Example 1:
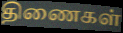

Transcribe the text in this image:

திணைகள்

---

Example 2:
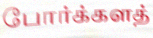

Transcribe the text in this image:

போர்க்களத்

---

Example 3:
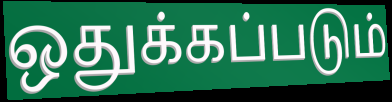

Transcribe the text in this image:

ஒதுக்கப்படும்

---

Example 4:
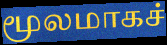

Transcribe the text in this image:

மூலமாகச்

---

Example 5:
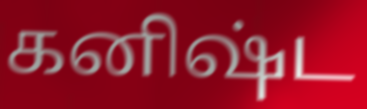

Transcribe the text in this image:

கனிஷ்ட